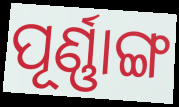
ପୂର୍ଣ୍ଣାଙ୍ଗ